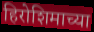
हिरोशिमाच्या